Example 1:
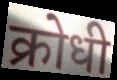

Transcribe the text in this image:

क्रोधी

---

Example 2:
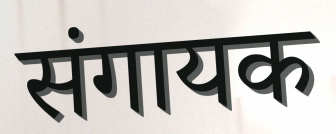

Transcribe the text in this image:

संगायक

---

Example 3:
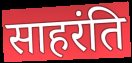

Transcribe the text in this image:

साहरंति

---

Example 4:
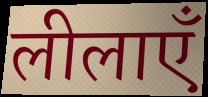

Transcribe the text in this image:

लीलाएँ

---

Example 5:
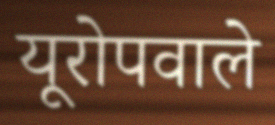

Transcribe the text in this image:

यूरोपवाले